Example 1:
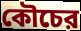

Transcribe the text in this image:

কৌচের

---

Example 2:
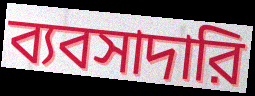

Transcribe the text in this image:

ব্যবসাদারি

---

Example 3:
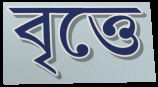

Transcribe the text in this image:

বৃত্তে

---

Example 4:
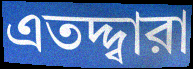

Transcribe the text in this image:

এতদ্দ্বারা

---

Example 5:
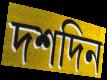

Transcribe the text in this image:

দশদিন